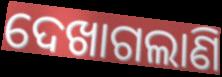
ଦେଖାଗଲାଣି